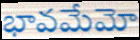
భావమేమో